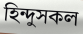
হিন্দুসকল